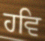
ਹਵਿ